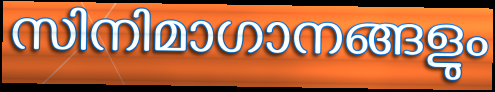
സിനിമാഗാനങ്ങളും